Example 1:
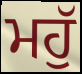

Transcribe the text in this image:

ਮਹੁੱ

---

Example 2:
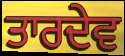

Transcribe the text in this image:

ਤਾਰਦੇਵ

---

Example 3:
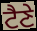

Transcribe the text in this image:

ਟੈਣੇ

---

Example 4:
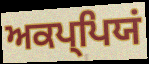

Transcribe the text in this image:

ਅਕਪ੍ਪਿਯਂ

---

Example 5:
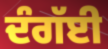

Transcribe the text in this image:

ਦੰਗੱਈ